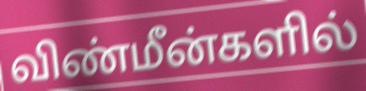
விண்மீன்களில்